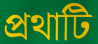
প্রথাটি